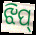
ଝିପ୍